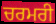
ਚਰਮਰੀ